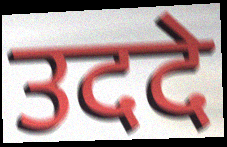
उददे